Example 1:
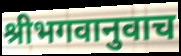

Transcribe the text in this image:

श्रीभगवानुवाच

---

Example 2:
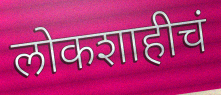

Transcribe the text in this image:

लोकशाहीचं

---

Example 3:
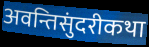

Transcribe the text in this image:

अवन्तिसुंदरीकथा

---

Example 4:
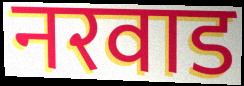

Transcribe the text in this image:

नरवाड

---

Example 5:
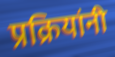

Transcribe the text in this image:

प्रक्रियांनी